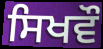
ਸਿਖਵੌ